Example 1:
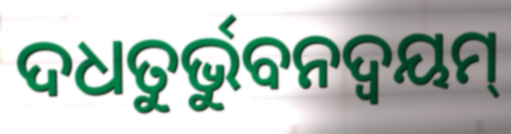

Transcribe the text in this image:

ଦଧତୁର୍ଭୁବନଦ୍ଵୟମ୍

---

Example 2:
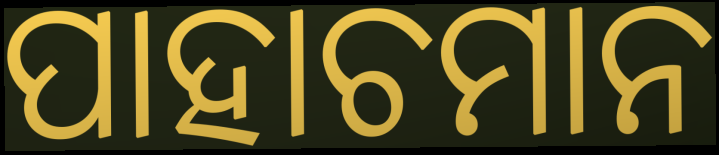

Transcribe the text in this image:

ପାହାଚମାନ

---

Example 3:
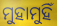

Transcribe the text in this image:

ମୁହାମୁହିଁ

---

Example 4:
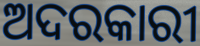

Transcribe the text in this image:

ଅଦରକାରୀ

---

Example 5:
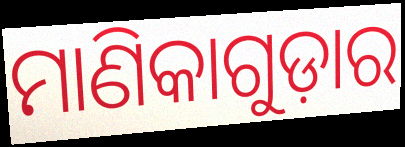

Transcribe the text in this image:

ମାଣିକାଗୁଡ଼ାର